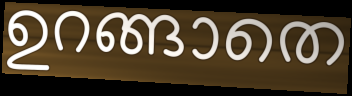
ഉറങ്ങാതെ